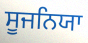
ਸੂਜਨਿਯਾ